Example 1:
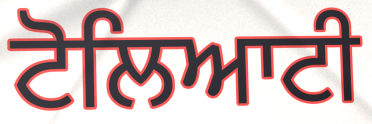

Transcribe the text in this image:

ਟੋਲਿਆਟੀ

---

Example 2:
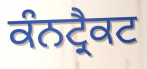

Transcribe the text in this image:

ਕੰਨਟ੍ਰੈਕਟ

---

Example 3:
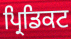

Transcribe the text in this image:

ਪ੍ਰਿਡਿਕਟ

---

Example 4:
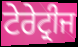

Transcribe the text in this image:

ਟੇਰੇਟ੍ਰੀਜ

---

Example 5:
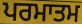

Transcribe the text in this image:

ਪਰਮਾਤਮ